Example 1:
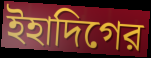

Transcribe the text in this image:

ইহাদিগের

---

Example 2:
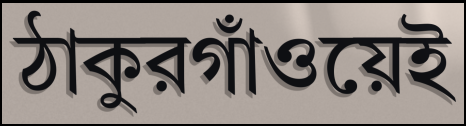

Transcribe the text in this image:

ঠাকুরগাঁওয়েই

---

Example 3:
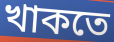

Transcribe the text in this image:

খাকতে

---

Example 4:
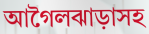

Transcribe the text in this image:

আগৈলঝাড়াসহ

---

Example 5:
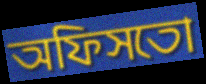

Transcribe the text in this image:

অফিসতো